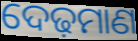
ଦେଢ଼ମାଣ